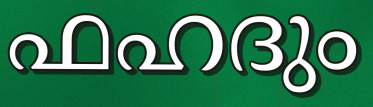
ഫഹദും